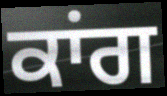
ਕਾਂਗ